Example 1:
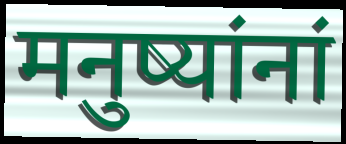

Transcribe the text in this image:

मनुष्यांनां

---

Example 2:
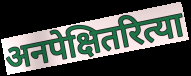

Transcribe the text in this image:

अनपेक्षितरित्या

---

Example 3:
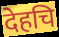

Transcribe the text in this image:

देहचि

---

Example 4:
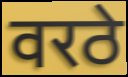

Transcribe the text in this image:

वरठे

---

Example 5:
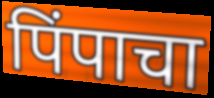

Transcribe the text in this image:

पिंपाचा